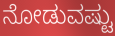
ನೋಡುವಷ್ಟು